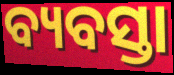
ବ୍ୟବସ୍ତା